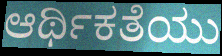
ಆರ್ಥಿಕತೆಯು